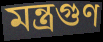
মন্ত্রগুণ